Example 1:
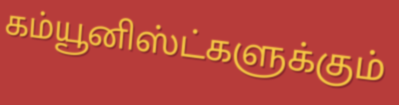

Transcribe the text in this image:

கம்யூனிஸ்ட்களுக்கும்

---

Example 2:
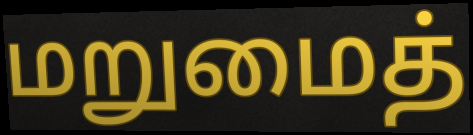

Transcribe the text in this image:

மறுமைத்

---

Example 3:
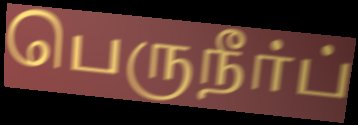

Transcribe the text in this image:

பெருநீர்ப்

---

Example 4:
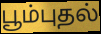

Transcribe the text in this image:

பூம்புதல்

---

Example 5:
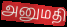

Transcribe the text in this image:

அனுமதி